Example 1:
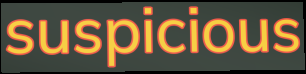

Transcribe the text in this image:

suspicious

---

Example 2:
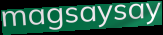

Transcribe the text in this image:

magsaysay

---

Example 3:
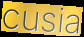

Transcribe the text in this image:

cusia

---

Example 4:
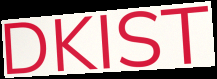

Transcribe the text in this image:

DKIST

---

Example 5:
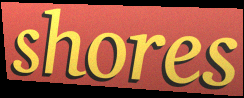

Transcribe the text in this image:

shores